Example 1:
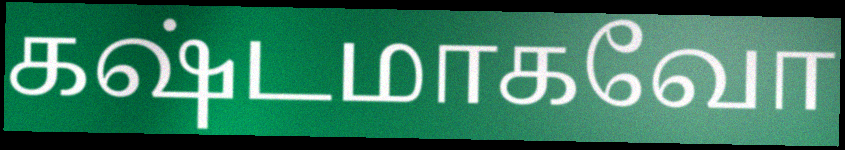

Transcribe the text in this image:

கஷ்டமாகவோ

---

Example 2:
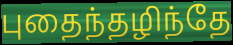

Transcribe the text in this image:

புதைந்தழிந்தே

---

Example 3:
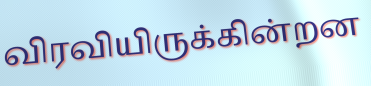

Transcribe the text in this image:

விரவியிருக்கின்றன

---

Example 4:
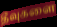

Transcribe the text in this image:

தீவுகளை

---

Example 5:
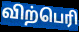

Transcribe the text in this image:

விற்பெரி